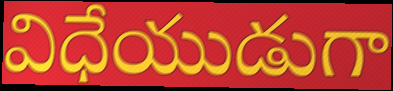
విధేయుడుగా